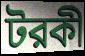
টরকী